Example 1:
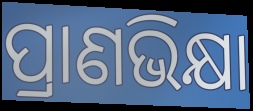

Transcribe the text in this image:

ପ୍ରାଣଭିକ୍ଷା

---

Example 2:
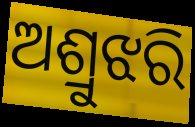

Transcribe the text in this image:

ଅଶ୍ରୁଝରି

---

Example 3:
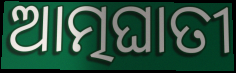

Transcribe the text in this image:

ଆତ୍ମଘାତୀ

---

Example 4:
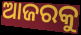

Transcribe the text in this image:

ଆଜରକୁ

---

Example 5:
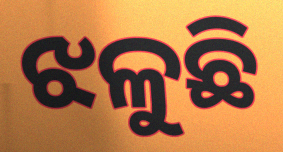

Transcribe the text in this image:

ଝଳୁଛି